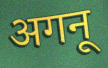
अगनू